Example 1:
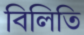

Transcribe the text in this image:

বিলিতি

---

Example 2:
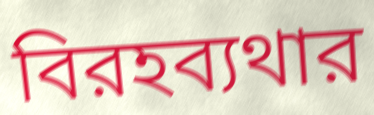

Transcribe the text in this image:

বিরহব্যথার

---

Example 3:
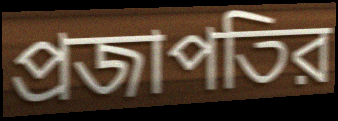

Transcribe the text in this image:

প্রজাপতির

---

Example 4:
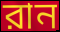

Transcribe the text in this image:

রান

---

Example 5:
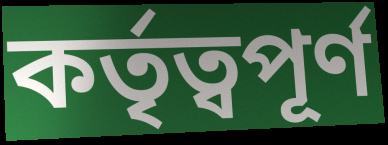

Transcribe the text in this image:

কর্তৃত্বপূর্ণ